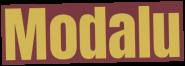
Modalu